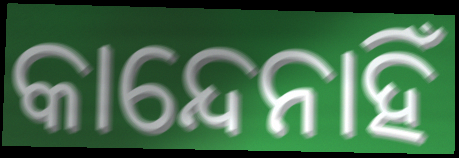
କାନ୍ଦେନାହିଁ